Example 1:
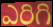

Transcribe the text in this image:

ఎరిగి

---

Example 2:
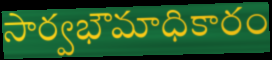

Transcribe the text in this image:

సార్వభౌమాధికారం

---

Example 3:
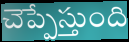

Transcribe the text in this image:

చెప్పేస్తుంది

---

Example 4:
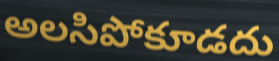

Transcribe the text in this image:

అలసిపోకూడదు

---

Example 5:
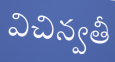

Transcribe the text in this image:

విచిన్వతీ